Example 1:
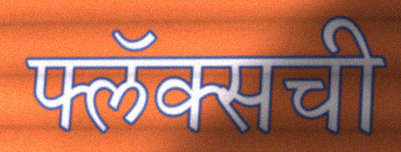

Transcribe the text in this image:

फ्लॅक्सची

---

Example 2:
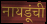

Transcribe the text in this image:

नायडूंची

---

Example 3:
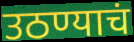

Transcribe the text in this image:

उठण्याचं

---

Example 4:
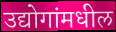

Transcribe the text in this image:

उद्योगांमधील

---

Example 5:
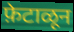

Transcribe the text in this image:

फ़ेटाळून